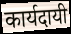
कार्यदायी